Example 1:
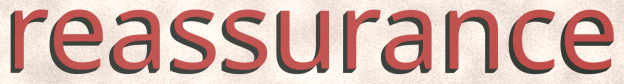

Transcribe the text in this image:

reassurance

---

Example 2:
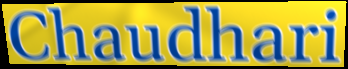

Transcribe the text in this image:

Chaudhari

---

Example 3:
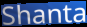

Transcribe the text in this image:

Shanta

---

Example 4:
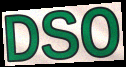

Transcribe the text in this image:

DSO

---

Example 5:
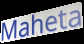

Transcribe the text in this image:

Maheta